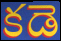
కడె